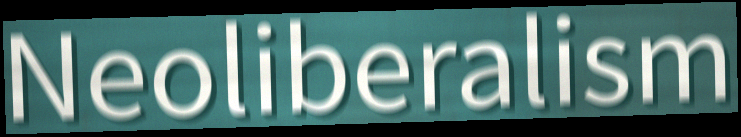
Neoliberalism